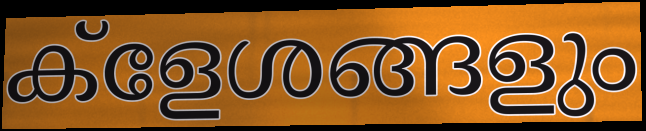
ക്ളേശങ്ങളും